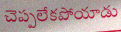
చెప్పలేకపోయాడు